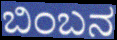
ಬಿಂಬನ